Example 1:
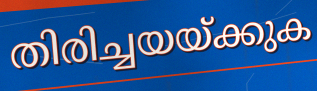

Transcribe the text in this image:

തിരിച്ചയയ്ക്കുക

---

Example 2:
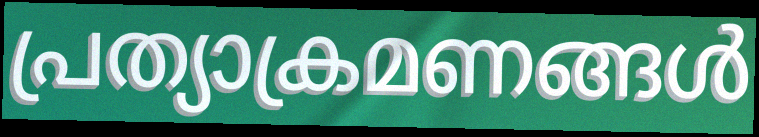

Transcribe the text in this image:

പ്രത്യാക്രമണങ്ങൾ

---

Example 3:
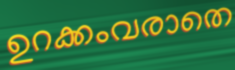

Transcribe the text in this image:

ഉറക്കംവരാതെ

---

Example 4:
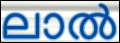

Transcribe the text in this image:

ലാൽ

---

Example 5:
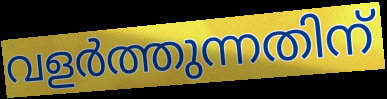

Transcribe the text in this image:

വളർത്തുന്നതിന്